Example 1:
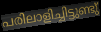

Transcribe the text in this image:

പരിലാളിച്ചിട്ടുണ്ടു്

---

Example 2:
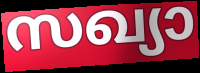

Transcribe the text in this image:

സഖ്യാ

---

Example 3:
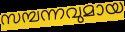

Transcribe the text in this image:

സമ്പന്നവുമായ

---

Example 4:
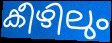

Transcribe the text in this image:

കീഴിലും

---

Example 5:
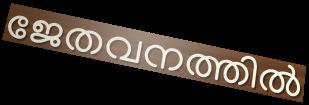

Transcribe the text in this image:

ജേതവനത്തിൽ